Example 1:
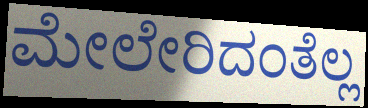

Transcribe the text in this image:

ಮೇಲೇರಿದಂತೆಲ್ಲ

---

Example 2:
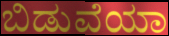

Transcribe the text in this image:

ಬಿಡುವೆಯಾ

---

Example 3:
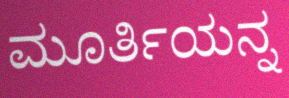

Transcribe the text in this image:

ಮೂರ್ತಿಯನ್ನ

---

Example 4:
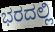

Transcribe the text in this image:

ಭರದಲ್ಲಿ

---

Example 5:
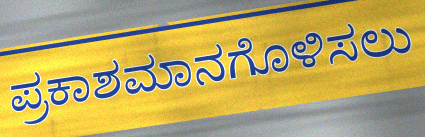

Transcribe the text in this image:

ಪ್ರಕಾಶಮಾನಗೊಳಿಸಲು